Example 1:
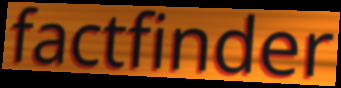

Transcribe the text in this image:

factfinder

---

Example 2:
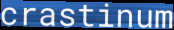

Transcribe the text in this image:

crastinum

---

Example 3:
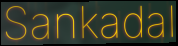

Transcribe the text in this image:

Sankadal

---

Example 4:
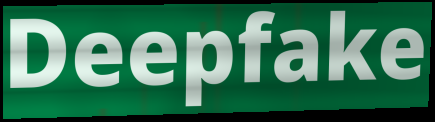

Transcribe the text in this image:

Deepfake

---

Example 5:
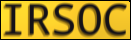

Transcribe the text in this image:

IRSOC